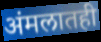
अंमलातही